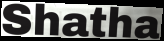
Shatha